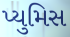
પ્યુમિસ